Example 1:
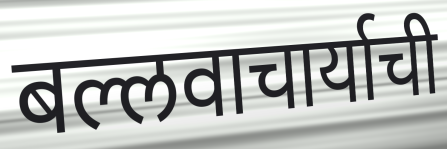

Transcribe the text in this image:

बल्लवाचार्याची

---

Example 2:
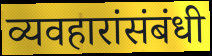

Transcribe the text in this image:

व्यवहारांसंबंधी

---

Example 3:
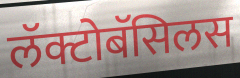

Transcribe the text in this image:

लॅक्टोबॅसिलस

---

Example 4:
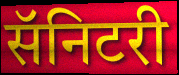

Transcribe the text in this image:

सॅनिटरी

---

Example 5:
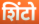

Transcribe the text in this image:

शिंटो